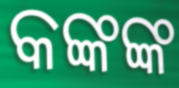
କଙ୍କଙ୍କ